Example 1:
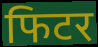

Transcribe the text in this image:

फिटर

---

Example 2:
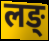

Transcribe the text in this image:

लङ्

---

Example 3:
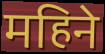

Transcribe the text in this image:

महिने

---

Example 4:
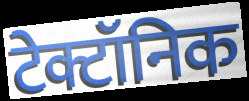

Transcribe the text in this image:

टेक्टॉनिक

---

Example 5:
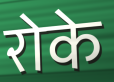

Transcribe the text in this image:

रोके